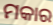
ମକାର